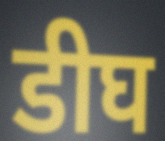
डीघ